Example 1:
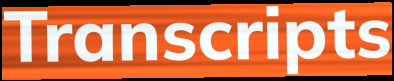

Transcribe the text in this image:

Transcripts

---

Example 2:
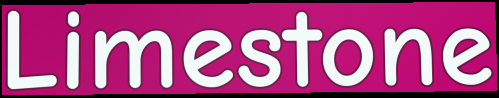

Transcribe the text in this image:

Limestone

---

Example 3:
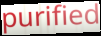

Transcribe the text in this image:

purified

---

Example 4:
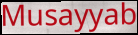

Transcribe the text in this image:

Musayyab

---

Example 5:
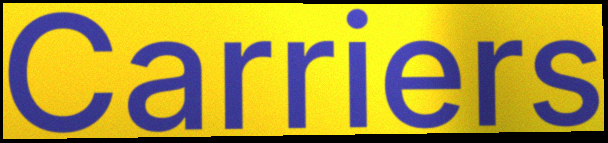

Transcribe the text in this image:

Carriers